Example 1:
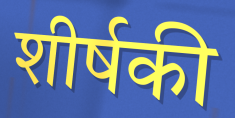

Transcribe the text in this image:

शीर्षकी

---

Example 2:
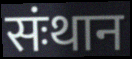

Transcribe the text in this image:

संःथान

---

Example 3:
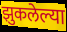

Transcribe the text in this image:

झुकलेल्या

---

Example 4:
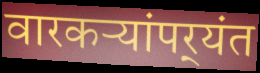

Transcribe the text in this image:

वारकऱ्यांपर्यंत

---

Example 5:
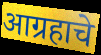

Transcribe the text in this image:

आग्रहाचे